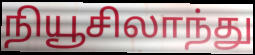
நியூசிலாந்து